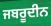
ਜਬਰੂਦੀਨ